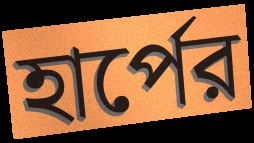
হার্পের